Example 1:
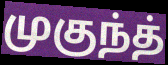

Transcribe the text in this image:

முகுந்த்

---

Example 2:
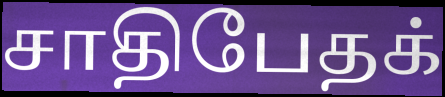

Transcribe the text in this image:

சாதிபேதக்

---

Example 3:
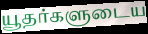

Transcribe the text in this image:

யூதர்களுடைய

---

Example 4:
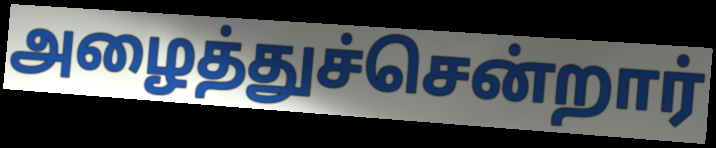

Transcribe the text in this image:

அழைத்துச்சென்றார்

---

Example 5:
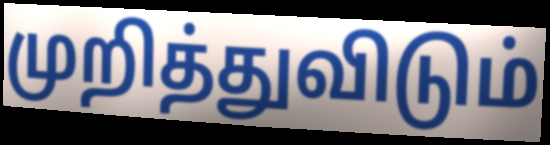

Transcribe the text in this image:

முறித்துவிடும்